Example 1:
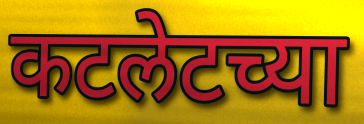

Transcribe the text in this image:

कटलेटच्या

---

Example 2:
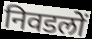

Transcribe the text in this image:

निवडलों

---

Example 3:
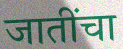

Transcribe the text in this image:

जातींचा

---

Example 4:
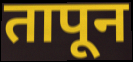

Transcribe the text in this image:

तापून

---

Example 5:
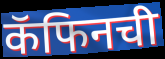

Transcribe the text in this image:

कॅफिनची